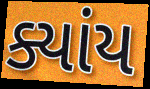
ક્યાંય